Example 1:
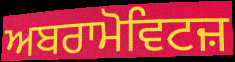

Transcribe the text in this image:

ਅਬਰਾਮੋਵਿਟਜ਼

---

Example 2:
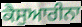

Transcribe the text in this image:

ਕੈਸੁਆਰੀਨਾ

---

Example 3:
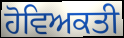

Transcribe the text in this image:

ਹੋਵਿਅਕਤੀ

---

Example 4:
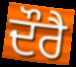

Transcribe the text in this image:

ਦੌਰੈ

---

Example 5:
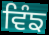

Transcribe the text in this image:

ਵਿੰਙ